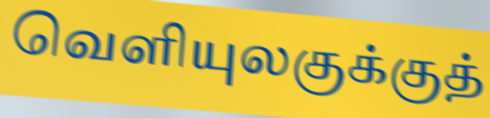
வெளியுலகுக்குத்